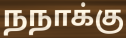
நநாக்கு